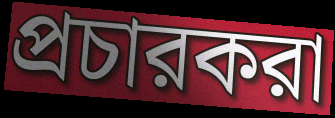
প্রচারকরা